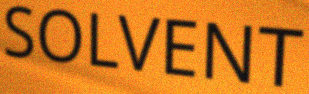
SOLVENT